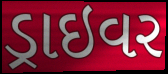
ડ્રાઇવર